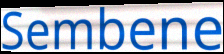
Sembene